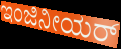
ಇಂಜಿನೀಯರ್